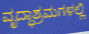
ವೃದ್ಧಾಶ್ರಮಗಳಲ್ಲಿ